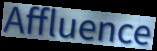
Affluence